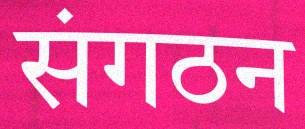
संगठन